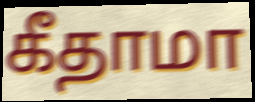
கீதாமா